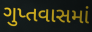
ગુપ્તવાસમાં